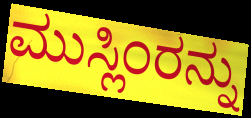
ಮುಸ್ಲಿಂರನ್ನು